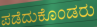
ಪಡೆದುಕೊಂಡರು